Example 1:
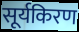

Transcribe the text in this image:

सूर्यकिरण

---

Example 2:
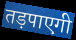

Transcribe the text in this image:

तड़पाएगी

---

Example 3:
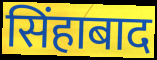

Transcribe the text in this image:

सिंहाबाद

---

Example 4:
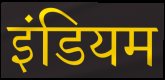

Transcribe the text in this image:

इंडियम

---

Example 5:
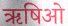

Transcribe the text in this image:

ऋषिओ